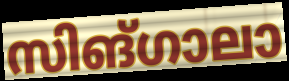
സിങ്ഗാലാ